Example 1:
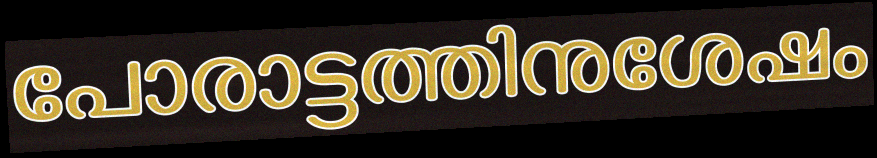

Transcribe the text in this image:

പോരാട്ടത്തിനുശേഷം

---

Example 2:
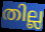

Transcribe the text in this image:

തില്ല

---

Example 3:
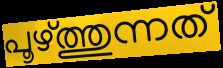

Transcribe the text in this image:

പൂഴ്ത്തുന്നത്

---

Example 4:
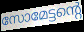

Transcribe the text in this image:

സോമേട്ടന്റെ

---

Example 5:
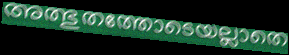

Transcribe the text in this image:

അത്ഭുതത്തോടെയല്ലാതെ